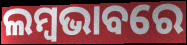
ଲମ୍ବଭାବରେ